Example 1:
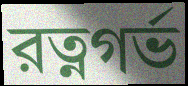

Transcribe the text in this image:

রত্নগর্ভ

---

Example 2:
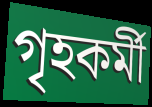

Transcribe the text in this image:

গৃহকর্মী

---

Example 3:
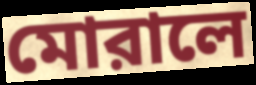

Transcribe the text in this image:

মোরালে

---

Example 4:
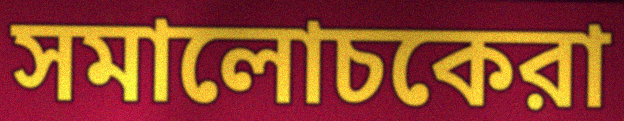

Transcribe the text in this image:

সমালোচকেরা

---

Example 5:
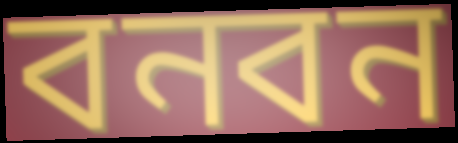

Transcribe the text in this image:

বনবন